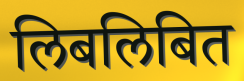
लिबलिबित